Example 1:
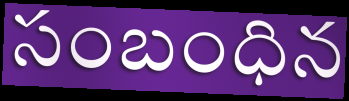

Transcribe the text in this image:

సంబంధిన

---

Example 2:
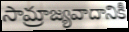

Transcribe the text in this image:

సామ్రాజ్యవాదానికీ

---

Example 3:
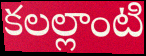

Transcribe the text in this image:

కలల్లాంటి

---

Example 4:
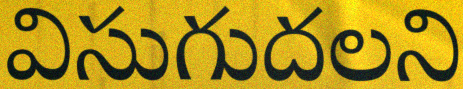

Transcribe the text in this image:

విసుగుదలని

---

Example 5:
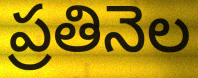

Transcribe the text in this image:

ప్రతినెల